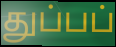
துப்பப்